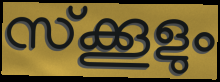
സ്ക്കൂളും